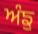
ਅੰਙੁ